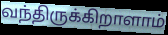
வந்திருக்கிறாளாம்